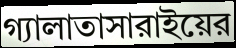
গ্যালাতাসারাইয়ের